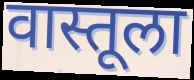
वास्तूला